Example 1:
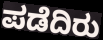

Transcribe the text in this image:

ಪಡೆದಿರು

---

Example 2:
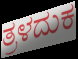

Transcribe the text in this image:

ತ್ರಳದುಕ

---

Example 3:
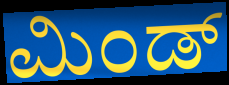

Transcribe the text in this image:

ಮಿಂಡ್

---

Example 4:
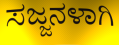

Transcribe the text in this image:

ಸಜ್ಜನಳಾಗಿ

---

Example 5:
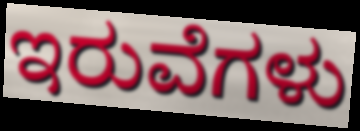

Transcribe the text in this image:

ಇರುವೆಗಳು